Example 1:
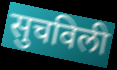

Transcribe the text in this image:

सुचविली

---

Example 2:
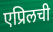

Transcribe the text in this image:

एप्रिलची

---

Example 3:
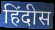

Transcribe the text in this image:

हिंदीस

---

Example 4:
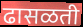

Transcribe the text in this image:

ढासळती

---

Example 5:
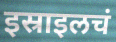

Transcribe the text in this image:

इस्राइलचं